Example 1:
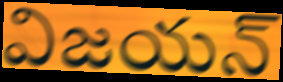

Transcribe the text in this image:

విజయన్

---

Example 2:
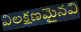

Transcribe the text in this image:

విలక్షణమైనవి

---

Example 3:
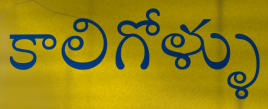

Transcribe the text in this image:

కాలిగోళ్ళు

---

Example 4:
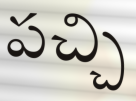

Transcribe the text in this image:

పచ్చి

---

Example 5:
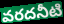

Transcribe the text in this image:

వరదనీటి